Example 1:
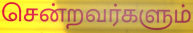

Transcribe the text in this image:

சென்றவர்களும்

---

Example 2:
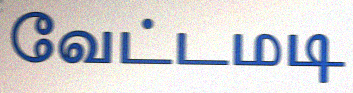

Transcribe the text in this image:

வேட்டமடி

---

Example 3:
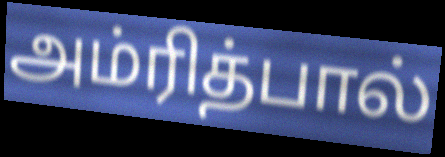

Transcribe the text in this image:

அம்ரித்பால்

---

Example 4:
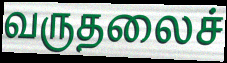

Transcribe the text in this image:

வருதலைச்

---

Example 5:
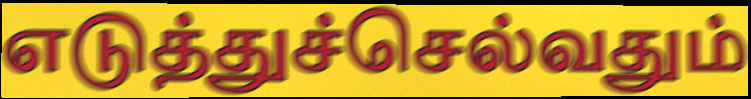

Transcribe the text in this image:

எடுத்துச்செல்வதும்